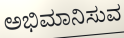
ಅಭಿಮಾನಿಸುವ